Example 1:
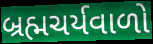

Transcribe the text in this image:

બ્રહ્મચર્યવાળો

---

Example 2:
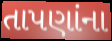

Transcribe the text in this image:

તાપણાંના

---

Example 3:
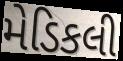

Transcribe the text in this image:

મેડિકલી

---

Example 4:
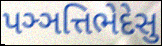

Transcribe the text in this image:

પઞ્ઞત્તિભેદેસુ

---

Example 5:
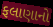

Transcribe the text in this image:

ફલાણાનો